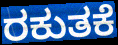
ರಕುತಕೆ